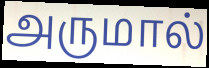
அருமால்